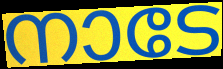
നാടേ